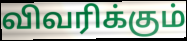
விவரிக்கும்